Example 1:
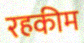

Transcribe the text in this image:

रहकीम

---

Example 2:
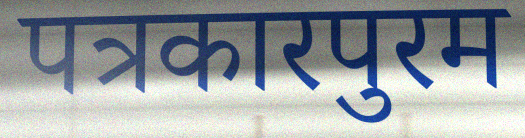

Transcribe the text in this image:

पत्रकारपुरम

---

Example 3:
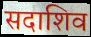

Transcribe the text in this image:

सदाशिव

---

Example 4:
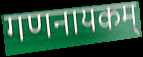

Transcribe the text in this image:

गणनायकम्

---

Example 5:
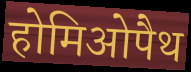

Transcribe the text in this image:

होमिओपैथ